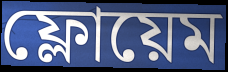
ফ্লোয়েম